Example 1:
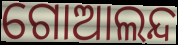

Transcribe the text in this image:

ଗୋଆଲନ୍ଦ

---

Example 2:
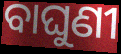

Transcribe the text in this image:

ବାଘୁଣୀ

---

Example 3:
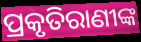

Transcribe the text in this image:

ପ୍ରକୃତିରାଣୀଙ୍କ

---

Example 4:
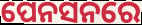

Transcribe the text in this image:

ପେନସନରେ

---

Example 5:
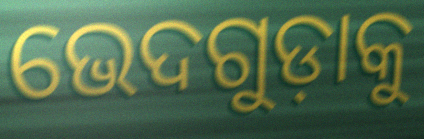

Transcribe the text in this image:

ଭେଦଗୁଡ଼ାକୁ